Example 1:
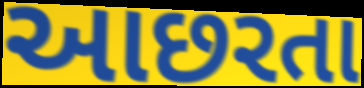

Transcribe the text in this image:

આછરતા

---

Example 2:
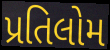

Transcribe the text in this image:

પ્રતિલોમ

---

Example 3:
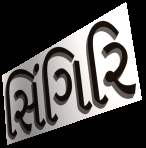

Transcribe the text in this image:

સિંગિરિ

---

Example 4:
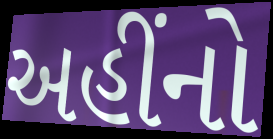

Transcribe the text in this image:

અહીંનો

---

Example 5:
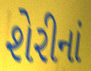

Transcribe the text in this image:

શેરીનાં